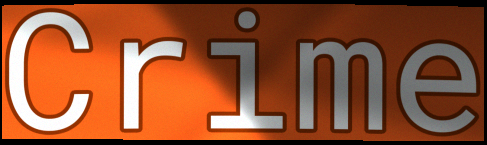
Crime